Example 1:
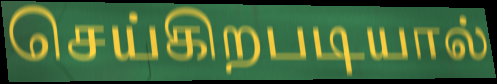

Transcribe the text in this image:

செய்கிறபடியால்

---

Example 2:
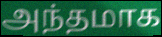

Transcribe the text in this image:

அந்தமாக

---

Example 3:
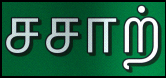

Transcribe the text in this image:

சசாற்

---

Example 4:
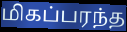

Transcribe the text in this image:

மிகப்பரந்த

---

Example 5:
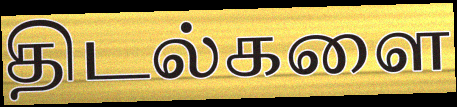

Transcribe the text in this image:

திடல்களை